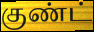
குண்ட்